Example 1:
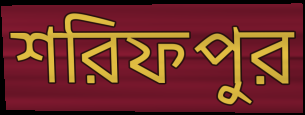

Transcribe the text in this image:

শরিফপুর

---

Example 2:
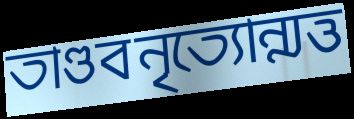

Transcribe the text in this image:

তাণ্ডবনৃত্যোন্মত্ত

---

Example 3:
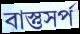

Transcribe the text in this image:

বাস্তুসর্প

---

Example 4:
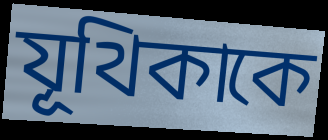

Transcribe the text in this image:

যূথিকাকে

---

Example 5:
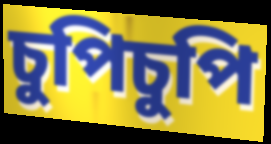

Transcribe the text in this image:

চুপিচুপি